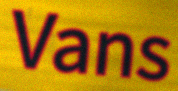
Vans